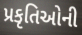
પ્રકૃતિઓની